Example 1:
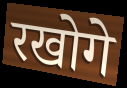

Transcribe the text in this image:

रखोगे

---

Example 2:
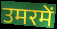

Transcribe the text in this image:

उमरमें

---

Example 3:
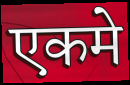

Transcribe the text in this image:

एकमे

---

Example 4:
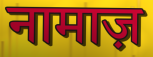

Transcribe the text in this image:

नामाज़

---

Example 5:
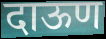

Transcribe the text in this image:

दाऊण